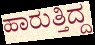
ಹಾರುತ್ತಿದ್ದ